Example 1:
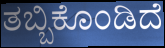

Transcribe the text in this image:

ತಬ್ಬಿಕೊಂಡಿದೆ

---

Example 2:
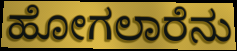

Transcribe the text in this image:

ಹೋಗಲಾರೆನು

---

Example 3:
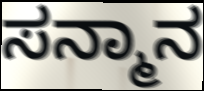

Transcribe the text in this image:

ಸನ್ಮಾನ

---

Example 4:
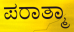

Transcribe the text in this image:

ಪರಾತ್ಮಾ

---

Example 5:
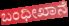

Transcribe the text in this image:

ಬಂಧೀಖಾನೆ